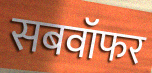
सबवॉफर